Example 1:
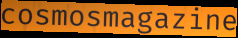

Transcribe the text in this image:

cosmosmagazine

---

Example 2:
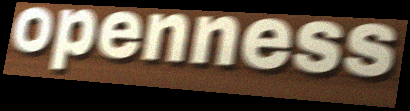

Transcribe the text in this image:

openness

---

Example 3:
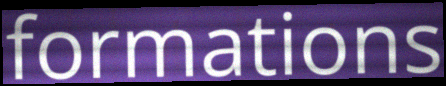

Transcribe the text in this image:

formations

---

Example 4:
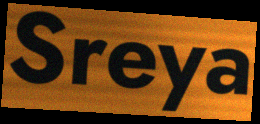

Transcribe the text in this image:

Sreya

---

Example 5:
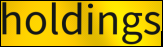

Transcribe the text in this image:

holdings